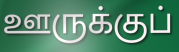
ஊருக்குப்